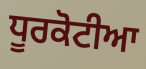
ਧੂਰਕੋਟੀਆ